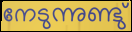
നേടുന്നുണ്ടു്